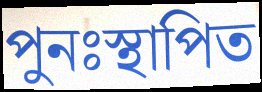
পুনঃস্থাপিত